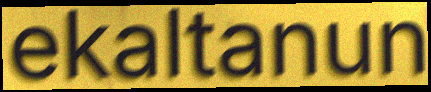
ekaltanun